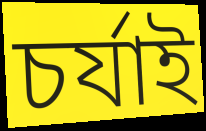
চর্যাই